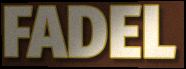
FADEL